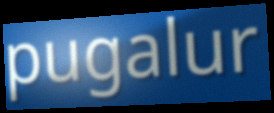
pugalur